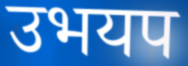
उभयप